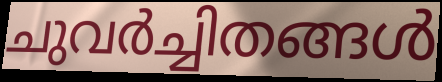
ചുവർച്ചിതങ്ങൾ